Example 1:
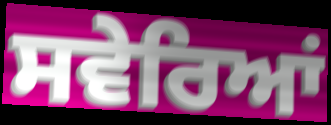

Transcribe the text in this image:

ਸਵੇਰਿਆਂ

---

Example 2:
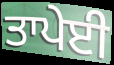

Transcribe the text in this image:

ਤਾਪੇਈ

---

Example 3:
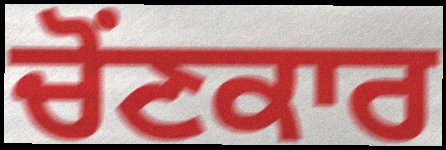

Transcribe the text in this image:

ਚੋਂਣਕਾਰ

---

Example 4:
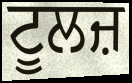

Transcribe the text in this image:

ਟੂਲਜ਼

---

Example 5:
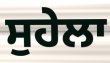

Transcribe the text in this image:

ਸੁਹੇਲਾ